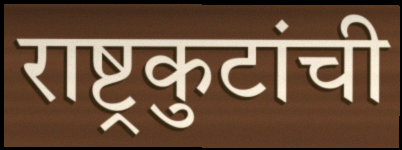
राष्ट्रकुटांची